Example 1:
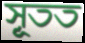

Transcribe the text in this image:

সূতত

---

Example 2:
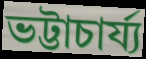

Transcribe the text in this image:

ভট্টাচাৰ্য্য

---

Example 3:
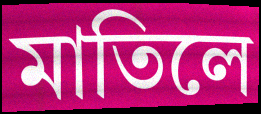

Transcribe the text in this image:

মাতিলে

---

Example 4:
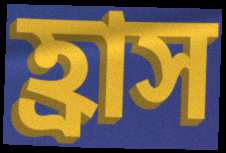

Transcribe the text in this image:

হ্ৰাস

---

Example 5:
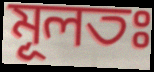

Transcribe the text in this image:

মূলতঃ